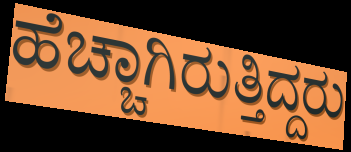
ಹೆಚ್ಚಾಗಿರುತ್ತಿದ್ದರು